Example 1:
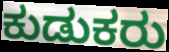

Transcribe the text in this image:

ಕುಡುಕರು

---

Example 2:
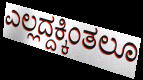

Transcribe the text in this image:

ಎಲ್ಲದ್ದಕ್ಕಿಂತಲೂ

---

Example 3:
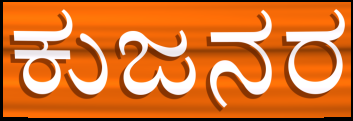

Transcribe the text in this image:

ಕುಜನರ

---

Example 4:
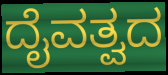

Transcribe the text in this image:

ದೈವತ್ವದ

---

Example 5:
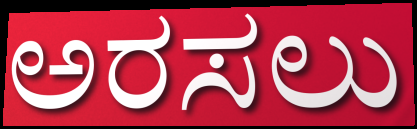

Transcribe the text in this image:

ಅರಸಲು